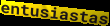
entusiastas